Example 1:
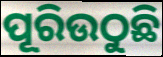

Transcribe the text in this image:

ପୂରିଉଠୁଛି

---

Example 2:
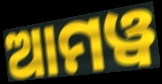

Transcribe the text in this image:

ଆମୱ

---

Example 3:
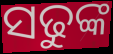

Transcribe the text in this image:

ସଢୁଙ୍କ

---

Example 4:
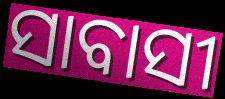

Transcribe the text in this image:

ସାବାସୀ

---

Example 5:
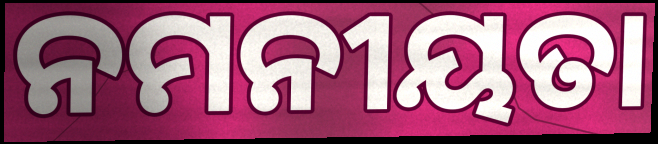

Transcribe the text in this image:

ନମନୀୟତା